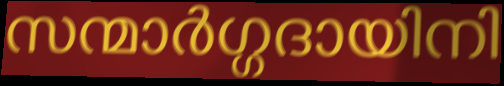
സന്മാർഗ്ഗദായിനി